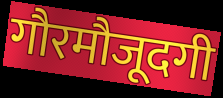
गौरमौजूदगी